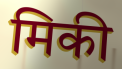
मिकी